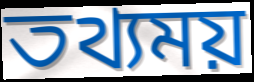
তথ্যময়